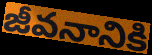
జీవనానికి